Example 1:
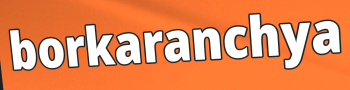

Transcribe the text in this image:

borkaranchya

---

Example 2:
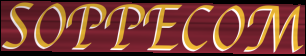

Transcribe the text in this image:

SOPPECOM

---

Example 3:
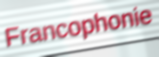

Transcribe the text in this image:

Francophonie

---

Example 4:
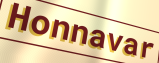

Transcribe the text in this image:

Honnavar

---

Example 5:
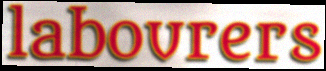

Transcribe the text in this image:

labourers